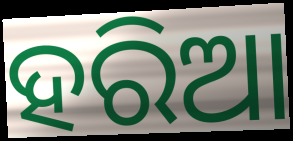
ହରିଆ